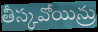
తీస్కవోయిన్రు